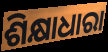
ଶିକ୍ଷାଧାରା